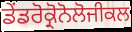
ਡੇਂਡਰੋਕ੍ਰੋਨੋਲੋਜੀਕਲ